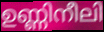
ഉണ്ണിനീലി